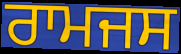
ਰਾਮਜਸ